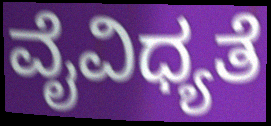
ವೈವಿಧ್ಯತೆ